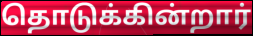
தொடுக்கின்றார்